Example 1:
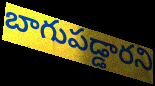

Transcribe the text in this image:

బాగుపడ్డారని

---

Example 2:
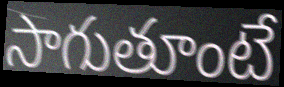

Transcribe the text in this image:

సాగుతూంటే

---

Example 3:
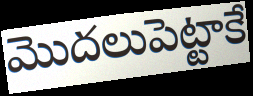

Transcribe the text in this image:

మొదలుపెట్టాకే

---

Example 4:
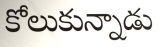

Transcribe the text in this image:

కోలుకున్నాడు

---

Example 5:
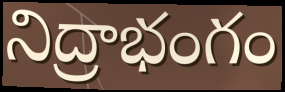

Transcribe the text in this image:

నిద్రాభంగం